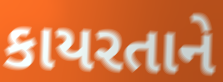
કાયરતાને